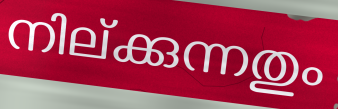
നില്ക്കുന്നതും